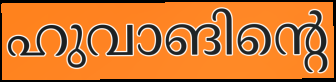
ഹുവാങിന്റെ